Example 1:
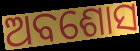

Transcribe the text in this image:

ଅବଶୋସ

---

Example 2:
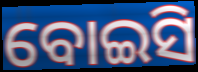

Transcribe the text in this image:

ବୋଇସି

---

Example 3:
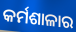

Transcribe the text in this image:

କର୍ମଶାଳାର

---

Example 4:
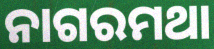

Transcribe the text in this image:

ନାଗରମଥା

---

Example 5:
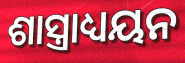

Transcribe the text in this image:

ଶାସ୍ତ୍ରାଧ୍ୟୟନ